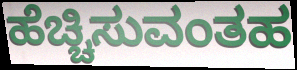
ಹೆಚ್ಚಿಸುವಂತಹ